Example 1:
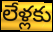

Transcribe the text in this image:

లేళ్లకు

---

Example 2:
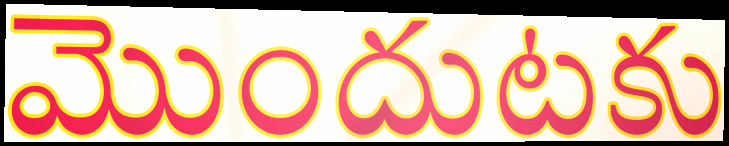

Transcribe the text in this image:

మొందుటకు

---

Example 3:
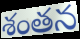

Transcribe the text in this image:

శంతన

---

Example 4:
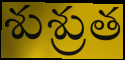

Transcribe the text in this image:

శుశ్రుత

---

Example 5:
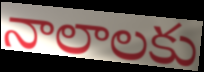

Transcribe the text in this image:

నాలాలకు